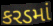
કરડમાં